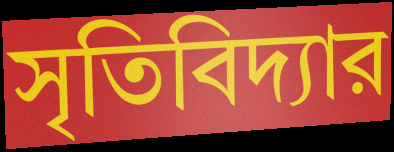
সৃতিবিদ্যার